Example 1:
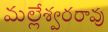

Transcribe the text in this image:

మల్లేశ్వరరావు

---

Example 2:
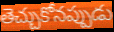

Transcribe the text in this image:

తెచ్చుకోనప్పుడు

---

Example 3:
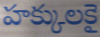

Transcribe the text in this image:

హక్కులకై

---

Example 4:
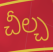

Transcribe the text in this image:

చీల్చ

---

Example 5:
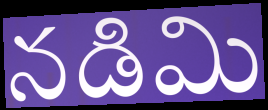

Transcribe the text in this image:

నడిమి